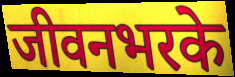
जीवनभरके